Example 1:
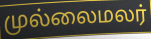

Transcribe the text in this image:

முல்லைமலர்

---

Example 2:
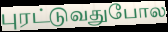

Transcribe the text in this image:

புரட்டுவதுபோல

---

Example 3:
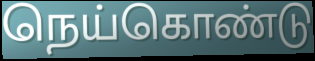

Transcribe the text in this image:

நெய்கொண்டு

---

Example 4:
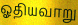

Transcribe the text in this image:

ஓதியவாறு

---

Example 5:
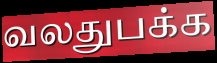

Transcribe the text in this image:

வலதுபக்க